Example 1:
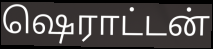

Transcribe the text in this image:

ஷெராட்டன்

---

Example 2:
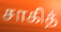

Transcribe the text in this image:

சாகித்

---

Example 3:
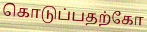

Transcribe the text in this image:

கொடுப்பதற்கோ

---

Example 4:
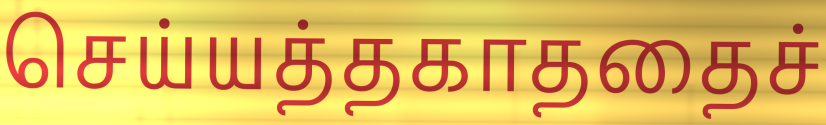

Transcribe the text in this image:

செய்யத்தகாததைச்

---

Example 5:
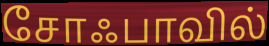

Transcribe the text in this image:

சோஃபாவில்